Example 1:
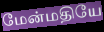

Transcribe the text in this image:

மேன்மதியே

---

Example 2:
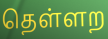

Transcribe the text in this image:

தெள்ளற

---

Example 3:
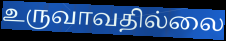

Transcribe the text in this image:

உருவாவதில்லை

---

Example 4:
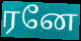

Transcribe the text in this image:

ரனே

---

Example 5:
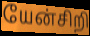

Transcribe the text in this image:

யேன்சிறி